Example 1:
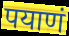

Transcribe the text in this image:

पयाणं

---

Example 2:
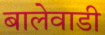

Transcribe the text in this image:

बालेवाडी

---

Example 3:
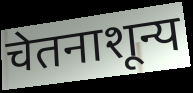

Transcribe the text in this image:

चेतनाशून्य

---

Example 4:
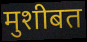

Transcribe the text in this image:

मुशीबत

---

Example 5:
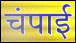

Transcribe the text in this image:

चंपाई